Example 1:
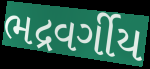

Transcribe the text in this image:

ભદ્રવર્ગીય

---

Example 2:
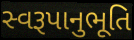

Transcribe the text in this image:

સ્વરૂપાનુભૂતિ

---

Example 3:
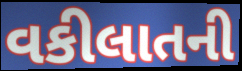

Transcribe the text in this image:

વકીલાતની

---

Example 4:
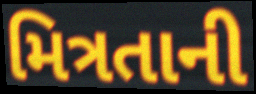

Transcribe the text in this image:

મિત્રતાની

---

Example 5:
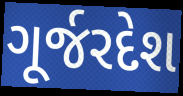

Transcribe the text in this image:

ગૂર્જરદેશ